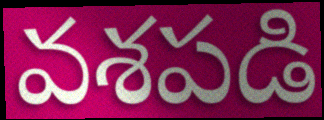
వశపడి